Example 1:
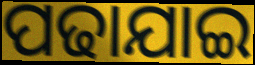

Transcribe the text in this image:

ପଢାଯାଇ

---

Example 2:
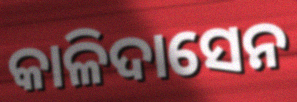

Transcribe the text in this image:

କାଳିଦାସେନ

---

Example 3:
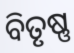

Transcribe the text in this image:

ବିତୃଷ୍ଣ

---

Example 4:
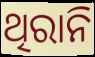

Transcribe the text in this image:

ଥିରାନି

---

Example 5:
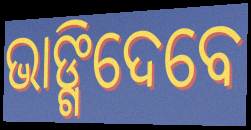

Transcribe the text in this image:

ଭାଙ୍ଗିଦେବେ